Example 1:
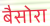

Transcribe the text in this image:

बैसोरा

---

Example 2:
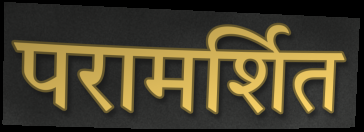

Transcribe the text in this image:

परामर्शित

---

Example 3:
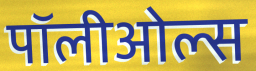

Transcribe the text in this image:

पॉलीओल्स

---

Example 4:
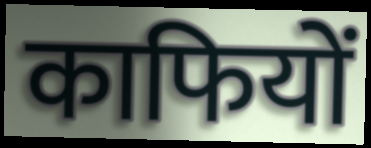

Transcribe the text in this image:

काफियों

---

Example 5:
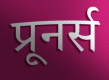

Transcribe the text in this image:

प्रूनर्स